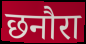
छनौरा